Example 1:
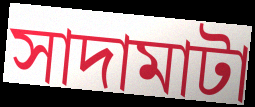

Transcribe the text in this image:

সাদামাটা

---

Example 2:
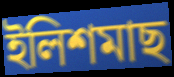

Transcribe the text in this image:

ইলিশমাছ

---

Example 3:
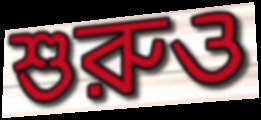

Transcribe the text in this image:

শুরুও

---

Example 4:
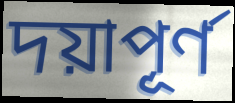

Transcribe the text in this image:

দয়াপূর্ণ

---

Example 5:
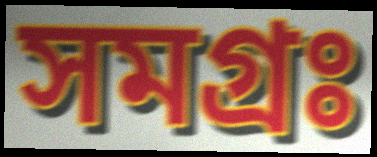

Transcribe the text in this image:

সমগ্রঃ